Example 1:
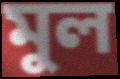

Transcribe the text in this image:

মুল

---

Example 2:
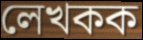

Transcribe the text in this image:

লেখকক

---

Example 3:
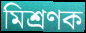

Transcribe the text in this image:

মিশ্ৰণক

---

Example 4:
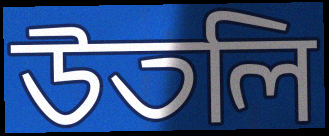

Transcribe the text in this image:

উতলি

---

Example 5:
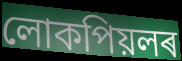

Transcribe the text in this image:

লোকপিয়লৰ